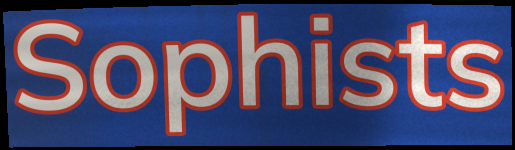
Sophists